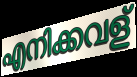
എനിക്കവള്